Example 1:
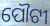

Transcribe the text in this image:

ପୌଟୀ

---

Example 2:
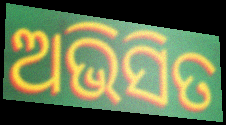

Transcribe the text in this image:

ଅଭିସିତ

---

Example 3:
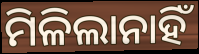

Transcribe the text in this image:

ମିଳିଲାନାହିଁ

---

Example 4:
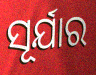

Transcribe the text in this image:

ସୂର୍ଯାର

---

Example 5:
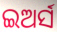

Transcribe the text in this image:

ଇଅର୍ସ